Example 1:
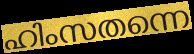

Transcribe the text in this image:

ഹിംസതന്നെ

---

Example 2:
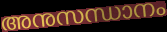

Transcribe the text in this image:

അനുസന്ധാനം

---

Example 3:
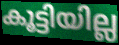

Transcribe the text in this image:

കൂട്ടിയില്ല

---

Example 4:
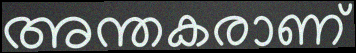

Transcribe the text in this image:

അന്തകരാണ്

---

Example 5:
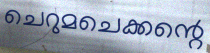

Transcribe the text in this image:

ചെറുമചെക്കന്റെ